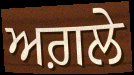
ਅਗ਼ਲੇ